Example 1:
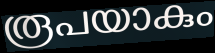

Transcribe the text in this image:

രൂപയാകും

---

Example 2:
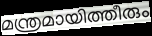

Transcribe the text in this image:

മന്ത്രമായിത്തീരും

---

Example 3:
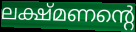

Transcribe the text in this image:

ലക്ഷ്മണന്റെ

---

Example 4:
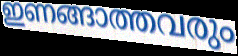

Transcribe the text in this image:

ഇണങ്ങാത്തവരും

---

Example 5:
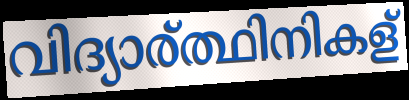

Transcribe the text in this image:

വിദ്യാര്ത്ഥിനികള്